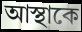
আস্থাকে